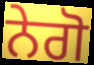
ਨੇਗੋ